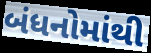
બંધનોમાંથી